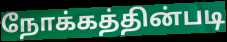
நோக்கத்தின்படி